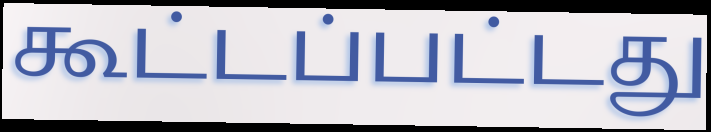
கூட்டப்பட்டது